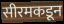
सीरमकडून